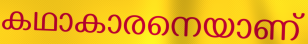
കഥാകാരനെയാണ്